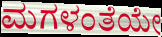
ಮಗಳಂತೆಯೇ